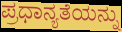
ಪ್ರಧಾನ್ಯತೆಯನ್ನು